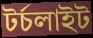
টর্চলাইট